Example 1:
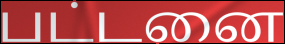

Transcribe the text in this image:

பட்டனை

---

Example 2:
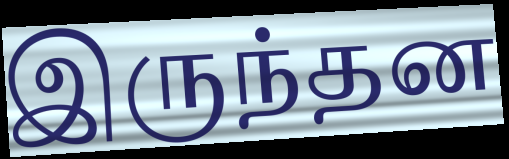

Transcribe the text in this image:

இருந்தன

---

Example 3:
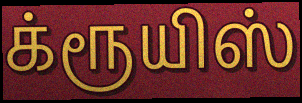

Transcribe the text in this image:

க்ரூயிஸ்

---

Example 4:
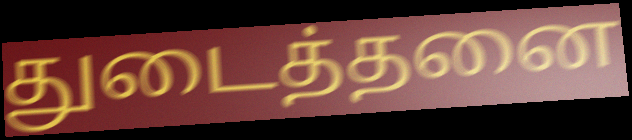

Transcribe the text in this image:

துடைத்தனை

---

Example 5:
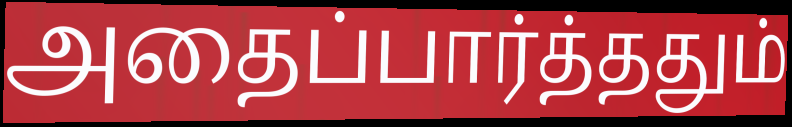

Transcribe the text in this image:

அதைப்பார்த்ததும்